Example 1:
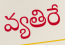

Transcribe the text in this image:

వ్యతిరే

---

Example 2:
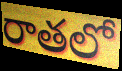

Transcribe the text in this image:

రాతలో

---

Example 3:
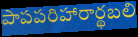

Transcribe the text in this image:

పాపపరిహారార్థబలి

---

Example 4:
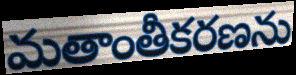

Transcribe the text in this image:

మతాంతీకరణను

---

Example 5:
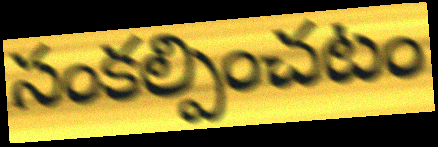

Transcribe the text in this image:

సంకల్పించటం